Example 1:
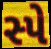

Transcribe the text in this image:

સ્પે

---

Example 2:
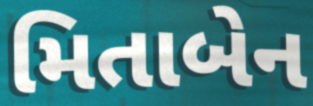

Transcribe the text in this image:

મિતાબેન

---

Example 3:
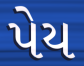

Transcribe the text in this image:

પેય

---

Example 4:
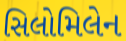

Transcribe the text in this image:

સિલોમિલેન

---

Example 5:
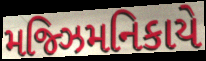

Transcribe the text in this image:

મજ્ઝિમનિકાયે